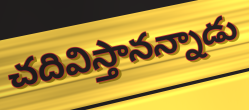
చదివిస్తానన్నాడు